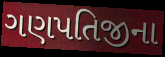
ગણપતિજીના